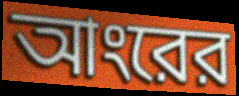
আংরের